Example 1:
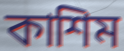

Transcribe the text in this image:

কাশিম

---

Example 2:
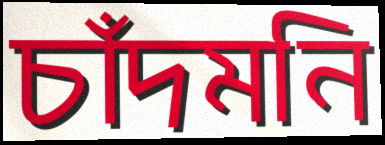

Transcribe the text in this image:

চাঁদমনি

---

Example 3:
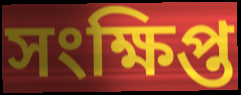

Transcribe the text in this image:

সংক্ষিপ্ত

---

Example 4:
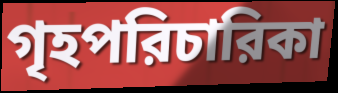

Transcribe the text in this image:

গৃহপরিচারিকা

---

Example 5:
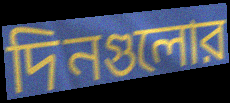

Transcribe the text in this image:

দিনগুলোর